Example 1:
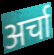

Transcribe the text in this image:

अर्चा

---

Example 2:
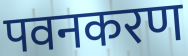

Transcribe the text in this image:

पवनकरण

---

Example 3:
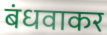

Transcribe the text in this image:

बंधवाकर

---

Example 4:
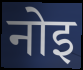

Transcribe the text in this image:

नोइ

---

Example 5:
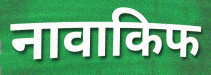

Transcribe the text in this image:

नावाकिफ